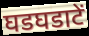
घडघडाटें